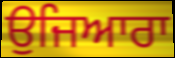
ਉਜਿਆਰਾ